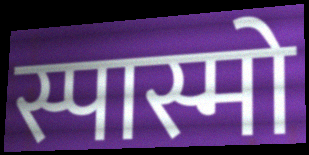
स्पास्मो